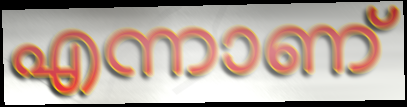
എന്നാണ്